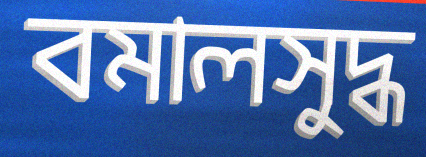
বমালসুদ্ধ